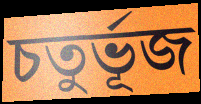
চতুৰ্ভূজ